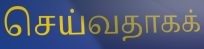
செய்வதாகக்